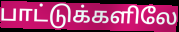
பாட்டுக்களிலே